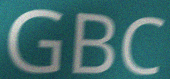
GBC